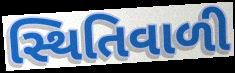
સ્થિતિવાળી